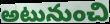
అటునుంచి